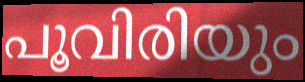
പൂവിരിയും